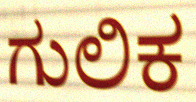
ಗುಲಿಕ